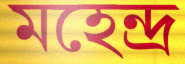
মহেন্দ্র